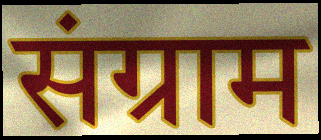
संग्राम